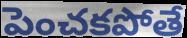
పెంచకపోతే